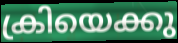
ക്രിയെക്കു